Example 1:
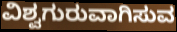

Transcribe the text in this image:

ವಿಶ್ವಗುರುವಾಗಿಸುವ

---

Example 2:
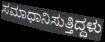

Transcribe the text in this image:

ಸಮಾಧಾನಿಸುತ್ತಿದ್ದಳು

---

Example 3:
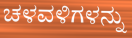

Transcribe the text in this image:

ಚಳವಳಿಗಳನ್ನು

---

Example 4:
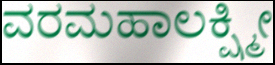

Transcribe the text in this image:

ವರಮಹಾಲಕ್ಷ್ಮೀ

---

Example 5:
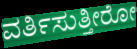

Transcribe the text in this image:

ವರ್ತಿಸುತ್ತೀರೋ